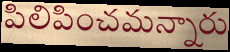
పిలిపించమన్నారు